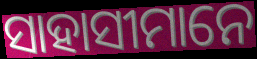
ସାହାସୀମାନେ